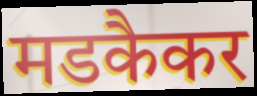
मडकैकर